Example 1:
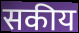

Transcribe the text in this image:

सकीय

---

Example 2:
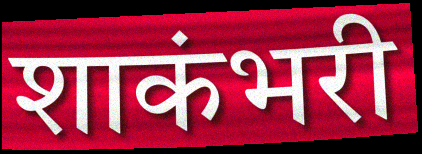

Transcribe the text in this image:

शाकंभरी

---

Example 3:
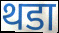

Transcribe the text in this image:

थडा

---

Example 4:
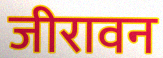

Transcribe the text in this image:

जीरावन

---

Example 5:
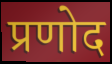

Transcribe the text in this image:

प्रणोद